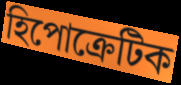
হিপোক্রেটিক